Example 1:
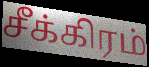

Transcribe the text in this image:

சீக்கிரம்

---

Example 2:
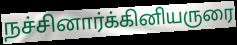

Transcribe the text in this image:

நச்சினார்க்கினியருரை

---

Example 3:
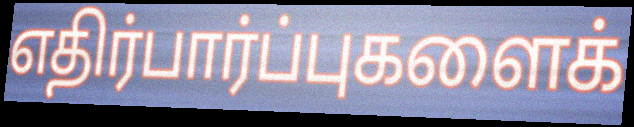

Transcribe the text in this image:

எதிர்பார்ப்புகளைக்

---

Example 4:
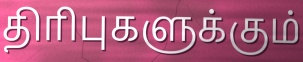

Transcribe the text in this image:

திரிபுகளுக்கும்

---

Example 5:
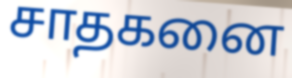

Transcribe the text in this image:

சாதகனை